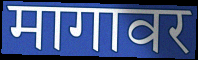
मागावर